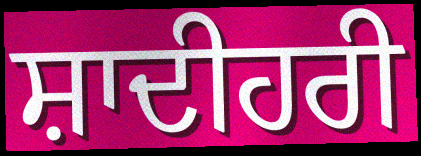
ਸ਼ਾਦੀਹਰੀ